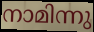
നാമിന്നു